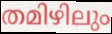
തമിഴിലും